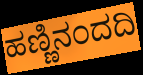
ಹಣ್ಣಿನಂದದಿ